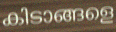
കിടാങ്ങളെ